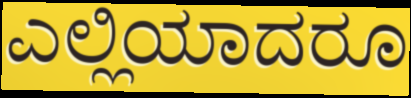
ಎಲ್ಲಿಯಾದರೂ